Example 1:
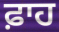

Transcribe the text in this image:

ਫ਼ਾਹ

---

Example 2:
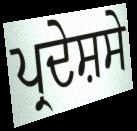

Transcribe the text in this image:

ਪ੍ਰਦੇਸ਼ਸੇ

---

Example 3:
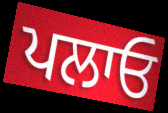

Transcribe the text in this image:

ਪਲਾਓ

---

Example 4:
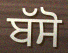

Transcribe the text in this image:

ਬੱਸੋ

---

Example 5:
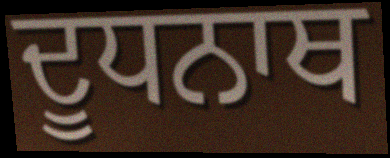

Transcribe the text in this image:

ਦੂਧਨਾਥ